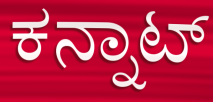
ಕನ್ನಾಟ್